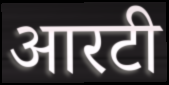
आरटी